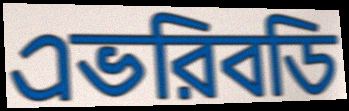
এভরিবডি